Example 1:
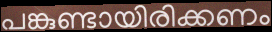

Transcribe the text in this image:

പങ്കുണ്ടായിരിക്കണം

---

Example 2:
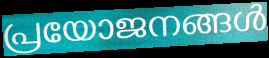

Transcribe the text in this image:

പ്രയോജനങ്ങൾ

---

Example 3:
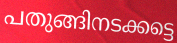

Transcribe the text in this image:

പതുങ്ങിനടക്കട്ടെ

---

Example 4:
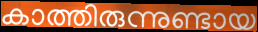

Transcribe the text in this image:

കാത്തിരുന്നുണ്ടായ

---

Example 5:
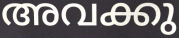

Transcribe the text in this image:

അവക്കു